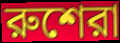
রুশেরা